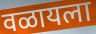
वळायला